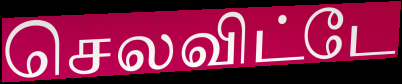
செலவிட்டே